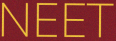
NEET